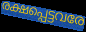
രക്ഷപ്പെട്ടവരേ